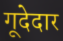
गूदेदार